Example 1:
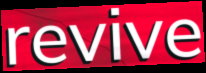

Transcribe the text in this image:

revive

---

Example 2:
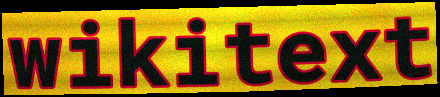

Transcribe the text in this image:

wikitext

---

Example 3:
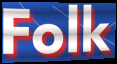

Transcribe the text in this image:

Folk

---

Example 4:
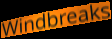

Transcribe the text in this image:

Windbreaks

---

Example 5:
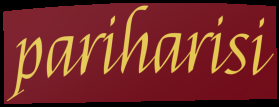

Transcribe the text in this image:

pariharisi